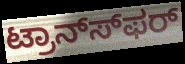
ಟ್ರಾನ್ಸ್‍ಫರ್